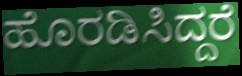
ಹೊರಡಿಸಿದ್ದರೆ